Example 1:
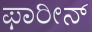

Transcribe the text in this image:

ಫಾರೀನ್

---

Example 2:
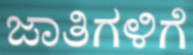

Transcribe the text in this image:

ಜಾತಿಗಳಿಗೆ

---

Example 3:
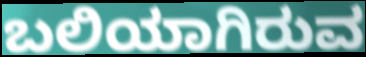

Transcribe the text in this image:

ಬಲಿಯಾಗಿರುವ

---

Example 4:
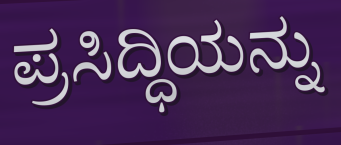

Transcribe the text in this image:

ಪ್ರಸಿದ್ಧಿಯನ್ನು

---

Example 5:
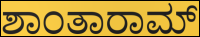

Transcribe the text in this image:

ಶಾಂತಾರಾಮ್